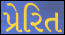
પ્રેરિત